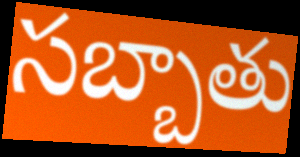
సబ్బాతు